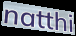
natthi